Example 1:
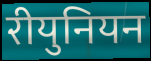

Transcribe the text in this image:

रीयुनियन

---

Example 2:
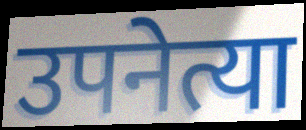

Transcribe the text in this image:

उपनेत्या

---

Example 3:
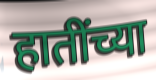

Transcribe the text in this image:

हातींच्या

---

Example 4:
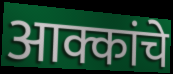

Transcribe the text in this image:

आक्कांचे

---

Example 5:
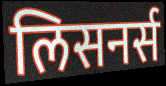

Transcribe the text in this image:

लिसनर्स